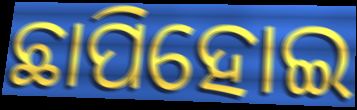
ଛାପିହୋଇ